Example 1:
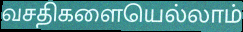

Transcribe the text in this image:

வசதிகளையெல்லாம்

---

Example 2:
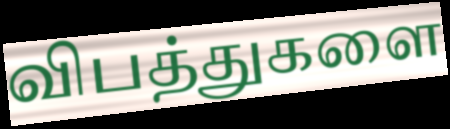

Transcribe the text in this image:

விபத்துகளை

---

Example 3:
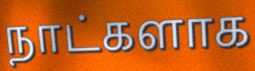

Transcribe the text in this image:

நாட்களாக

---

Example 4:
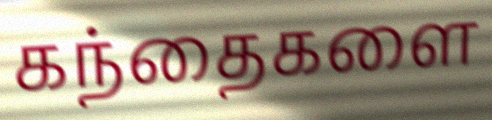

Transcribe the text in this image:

கந்தைகளை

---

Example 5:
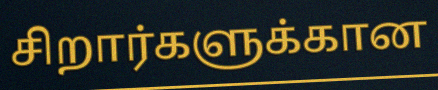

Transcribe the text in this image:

சிறார்களுக்கான